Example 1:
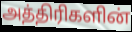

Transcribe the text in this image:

அத்திரிகளின்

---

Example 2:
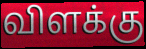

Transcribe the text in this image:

விளக்கு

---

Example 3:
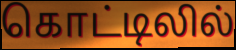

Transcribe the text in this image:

கொட்டிலில்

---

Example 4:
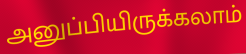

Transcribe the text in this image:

அனுப்பியிருக்கலாம்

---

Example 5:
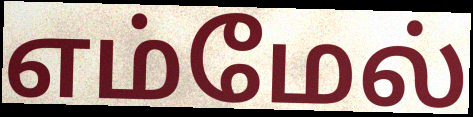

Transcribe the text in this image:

எம்மேல்